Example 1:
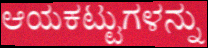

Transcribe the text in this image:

ಆಯಕಟ್ಟುಗಳನ್ನು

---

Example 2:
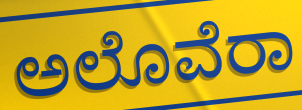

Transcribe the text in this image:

ಅಲೊವೆರಾ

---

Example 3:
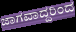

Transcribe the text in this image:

ಜಾಗವಾದ್ದರಿಂದ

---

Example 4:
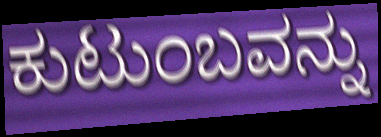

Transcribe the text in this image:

ಕುಟುಂಬವನ್ನು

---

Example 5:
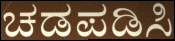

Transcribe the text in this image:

ಚಡಪಡಿಸಿ